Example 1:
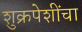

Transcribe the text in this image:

शुक्रपेशींचा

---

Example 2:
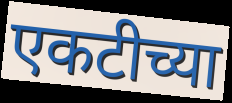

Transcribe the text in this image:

एकटीच्या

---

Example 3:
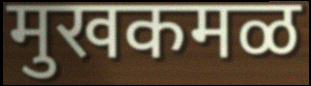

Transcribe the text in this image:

मुखकमळ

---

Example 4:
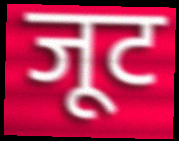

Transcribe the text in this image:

जूट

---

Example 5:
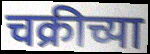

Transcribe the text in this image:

चक्रीच्या